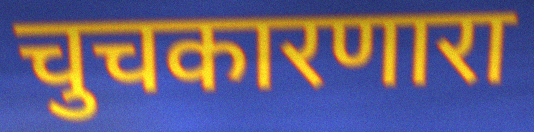
चुचकारणारा